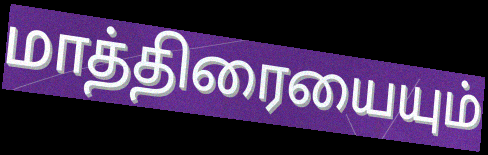
மாத்திரையையும்